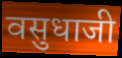
वसुधाजी